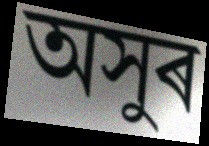
অসুৰ